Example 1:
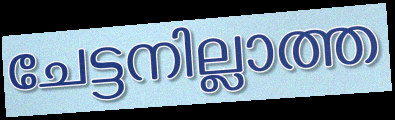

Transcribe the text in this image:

ചേട്ടനില്ലാത്ത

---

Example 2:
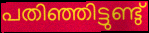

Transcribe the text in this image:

പതിഞ്ഞിട്ടുണ്ടു്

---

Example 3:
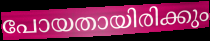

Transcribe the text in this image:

പോയതായിരിക്കും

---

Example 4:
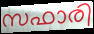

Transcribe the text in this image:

സഫാരി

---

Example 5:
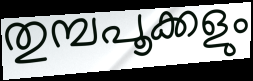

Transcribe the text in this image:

തുമ്പപൂക്കളും